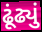
ઢૂંઢ્યું